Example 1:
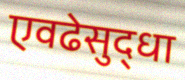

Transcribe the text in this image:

एवढेसुद्धा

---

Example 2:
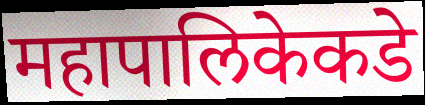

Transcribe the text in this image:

महापालिकेकडे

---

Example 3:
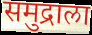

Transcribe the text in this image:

समुद्राला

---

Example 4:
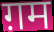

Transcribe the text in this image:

ग़म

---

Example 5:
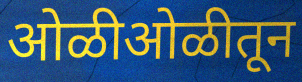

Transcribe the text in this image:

ओळीओळीतून